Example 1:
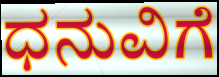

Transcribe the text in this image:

ಧನುವಿಗೆ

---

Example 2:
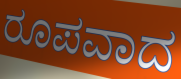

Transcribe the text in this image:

ರೂಪವಾದ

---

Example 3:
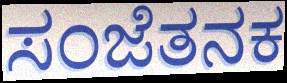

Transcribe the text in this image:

ಸಂಜೆತನಕ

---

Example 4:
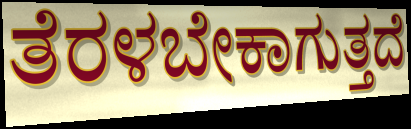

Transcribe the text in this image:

ತೆರಳಬೇಕಾಗುತ್ತದೆ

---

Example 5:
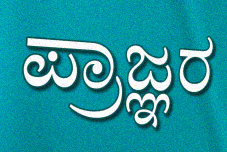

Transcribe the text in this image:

ಪ್ರಾಜ್ಞರ